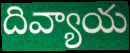
దివ్యాయ